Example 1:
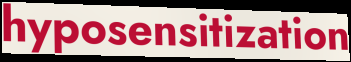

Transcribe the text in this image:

hyposensitization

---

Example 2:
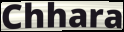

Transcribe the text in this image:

Chhara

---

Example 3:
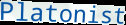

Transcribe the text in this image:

Platonist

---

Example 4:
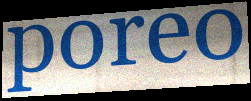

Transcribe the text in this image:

poreo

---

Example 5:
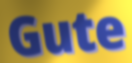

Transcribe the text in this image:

Gute